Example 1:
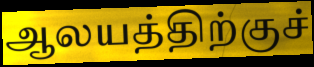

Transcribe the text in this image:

ஆலயத்திற்குச்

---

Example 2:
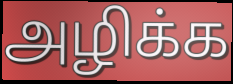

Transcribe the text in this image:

அழிக்க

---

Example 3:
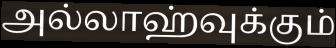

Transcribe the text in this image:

அல்லாஹ்வுக்கும்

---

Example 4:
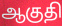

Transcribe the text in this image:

ஆகுதி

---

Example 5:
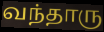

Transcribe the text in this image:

வந்தாரு